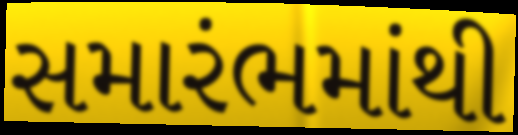
સમારંભમાંથી